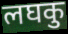
लघकु